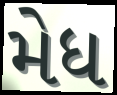
મેધ